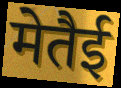
मेतैई